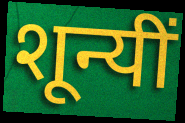
शून्यीं